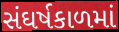
સંઘર્ષકાળમાં